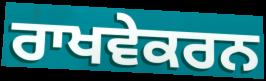
ਰਾਖਵੇਕਰਨ